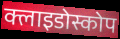
क्लाइडोस्कोप